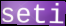
seti